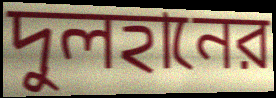
দুলহানের